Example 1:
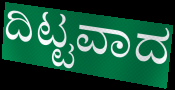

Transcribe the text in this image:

ದಿಟ್ಟವಾದ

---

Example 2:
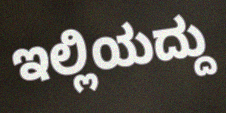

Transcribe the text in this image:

ಇಲ್ಲಿಯದ್ದು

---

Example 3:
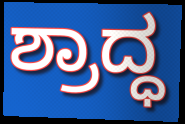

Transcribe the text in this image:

ಶ್ರಾದ್ಧ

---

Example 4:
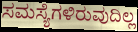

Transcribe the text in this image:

ಸಮಸ್ಯೆಗಳಿರುವುದಿಲ್ಲ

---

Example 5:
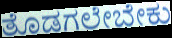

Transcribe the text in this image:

ತೊಡಗಲೇಬೇಕು